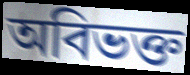
অবিভক্ত